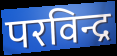
परविन्द्र